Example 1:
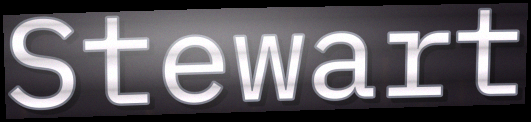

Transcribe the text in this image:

Stewart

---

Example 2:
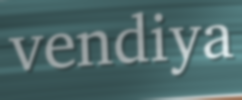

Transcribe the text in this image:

vendiya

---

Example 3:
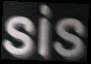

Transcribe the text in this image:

sis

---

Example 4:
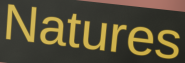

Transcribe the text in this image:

Natures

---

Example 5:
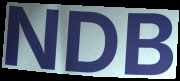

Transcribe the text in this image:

NDB